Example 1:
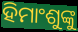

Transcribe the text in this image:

ହିମାଂଶୁଙ୍କୁ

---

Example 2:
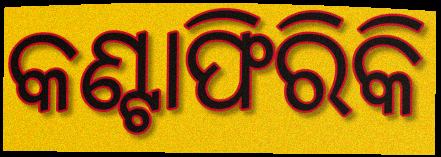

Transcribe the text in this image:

କଣ୍ଟାଫିରିକି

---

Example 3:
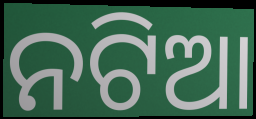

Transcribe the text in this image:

ନଟିଆ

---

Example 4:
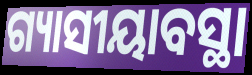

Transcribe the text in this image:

ଗ୍ୟାସୀୟାବସ୍ଥା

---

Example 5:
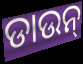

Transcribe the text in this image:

ଡାଉନ୍